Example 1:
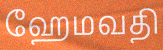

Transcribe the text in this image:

ஹேமவதி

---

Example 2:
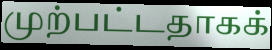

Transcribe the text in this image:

முற்பட்டதாகக்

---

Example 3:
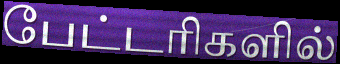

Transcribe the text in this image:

பேட்டரிகளில்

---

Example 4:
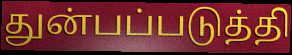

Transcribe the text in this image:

துன்பப்படுத்தி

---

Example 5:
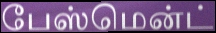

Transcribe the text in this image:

பேஸ்மென்ட்